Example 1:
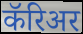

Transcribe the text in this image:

कॅरिअर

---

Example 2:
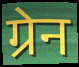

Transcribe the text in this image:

ग्रेन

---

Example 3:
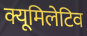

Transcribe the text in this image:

क्यूमिलेटिव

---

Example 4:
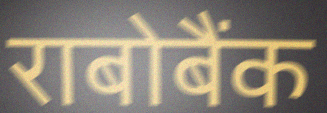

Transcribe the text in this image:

राबोबैंक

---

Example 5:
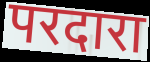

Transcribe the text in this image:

परदारा